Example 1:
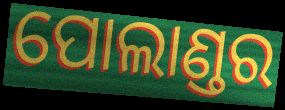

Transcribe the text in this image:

ପୋଲାଣ୍ଡର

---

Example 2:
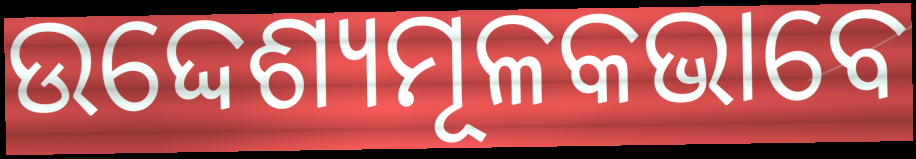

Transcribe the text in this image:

ଉଦ୍ଦେଶ୍ୟମୂଳକଭାବେ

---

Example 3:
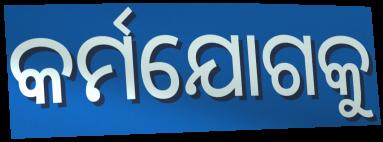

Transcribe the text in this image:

କର୍ମଯୋଗକୁ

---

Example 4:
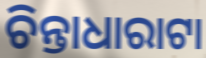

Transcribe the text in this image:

ଚିନ୍ତାଧାରାଟା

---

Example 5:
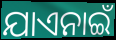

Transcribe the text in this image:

ଯାଏନାଇଁ